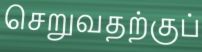
செறுவதற்குப்